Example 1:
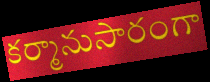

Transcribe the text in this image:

కర్మానుసారంగా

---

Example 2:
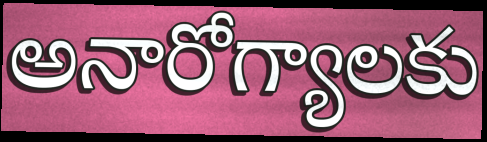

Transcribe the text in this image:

అనారోగ్యాలకు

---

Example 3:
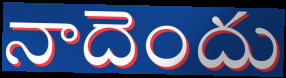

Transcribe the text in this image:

నాదెందు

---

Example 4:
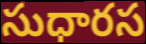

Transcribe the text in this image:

సుధారస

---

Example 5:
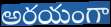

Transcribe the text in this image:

అరయంగా